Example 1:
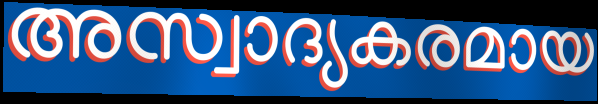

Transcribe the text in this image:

അസ്വാദ്യകരമായ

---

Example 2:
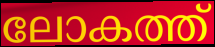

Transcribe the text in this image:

ലോകത്ത്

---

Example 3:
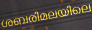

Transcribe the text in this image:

ശബരിമലയിലെ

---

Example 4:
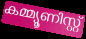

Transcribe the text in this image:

കമ്മ്യൂണിസ്റ്റ്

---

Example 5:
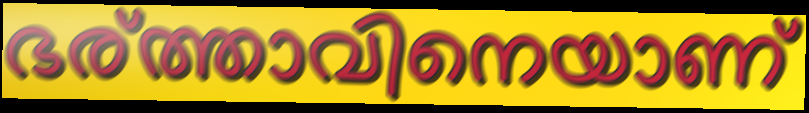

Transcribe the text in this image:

ഭര്ത്താവിനെയാണ്